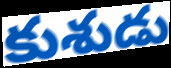
కుశుడు